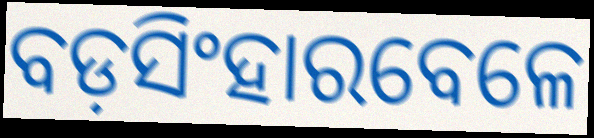
ବଡ଼ସିଂହାରବେଳେ